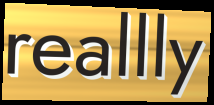
reallly